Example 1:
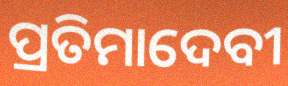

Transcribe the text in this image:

ପ୍ରତିମାଦେବୀ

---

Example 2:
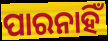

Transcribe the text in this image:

ପାରନାହିଁ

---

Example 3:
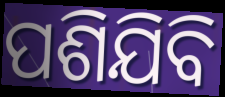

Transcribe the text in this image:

ପଶିଯିବି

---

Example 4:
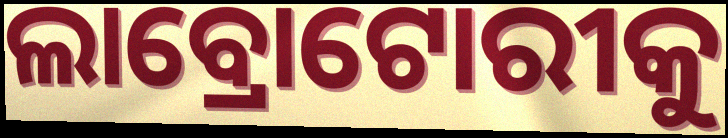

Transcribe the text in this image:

ଲାବ୍ରୋଟୋରୀକୁ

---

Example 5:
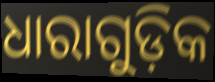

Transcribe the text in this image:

ଧାରାଗୁଡ଼ିକ